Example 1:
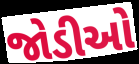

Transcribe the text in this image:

જોડીઓ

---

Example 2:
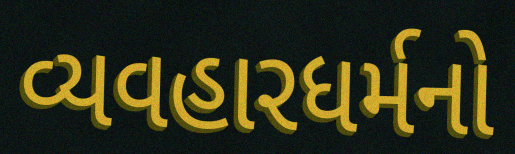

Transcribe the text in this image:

વ્યવહારધર્મનો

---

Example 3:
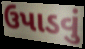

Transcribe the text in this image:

ઉપાડવું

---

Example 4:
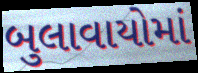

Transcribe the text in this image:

બુલાવાયોમાં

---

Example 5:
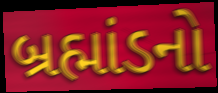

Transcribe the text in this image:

બ્રહ્માંડનો